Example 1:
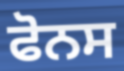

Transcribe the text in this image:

ਫੋਨਸ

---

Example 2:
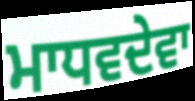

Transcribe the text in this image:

ਮਾਧਵਦੇਵਾ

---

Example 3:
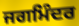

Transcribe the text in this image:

ਜਗਮਿੰਦਰ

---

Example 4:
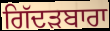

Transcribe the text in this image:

ਗਿੱਦੜਬਾਰਾ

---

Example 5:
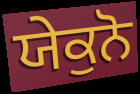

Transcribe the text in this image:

ਯੇਕੁਨੋ